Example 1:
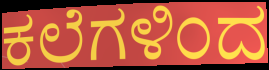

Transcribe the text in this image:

ಕಲೆಗಳಿಂದ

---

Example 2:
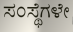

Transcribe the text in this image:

ಸಂಸ್ಥೆಗಳೇ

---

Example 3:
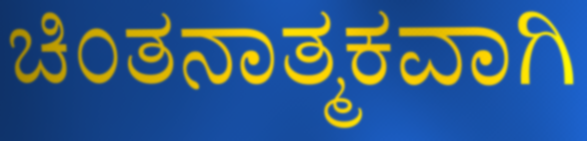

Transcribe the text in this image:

ಚಿಂತನಾತ್ಮಕವಾಗಿ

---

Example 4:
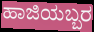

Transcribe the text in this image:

ಹಾಜಿಯಬ್ಬರ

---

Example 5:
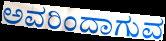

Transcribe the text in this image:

ಅವರಿಂದಾಗುವ